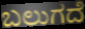
ಬಲುಗದೆ